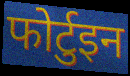
फोर्टुइन